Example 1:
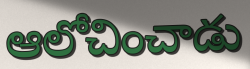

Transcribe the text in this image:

ఆలోచించాడు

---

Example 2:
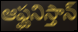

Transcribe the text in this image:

ఆఫ్ఘనిస్తాన్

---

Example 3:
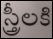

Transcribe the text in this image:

స్త్రీలకి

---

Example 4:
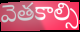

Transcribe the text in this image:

వెతకాల్సి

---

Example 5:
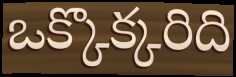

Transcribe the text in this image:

ఒక్కొక్కరిది